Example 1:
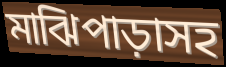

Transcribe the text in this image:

মাঝিপাড়াসহ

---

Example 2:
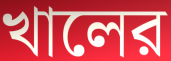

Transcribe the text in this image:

খালের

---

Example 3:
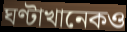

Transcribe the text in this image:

ঘণ্টাখানেকও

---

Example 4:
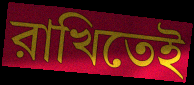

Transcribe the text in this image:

রাখিতেই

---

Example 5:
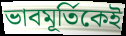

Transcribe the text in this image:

ভাবমূর্তিকেই